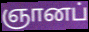
ஞானப்